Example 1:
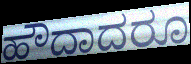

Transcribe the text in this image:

ಹೌದಾದರೂ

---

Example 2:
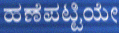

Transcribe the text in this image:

ಹಣೆಪಟ್ಟಿಯೇ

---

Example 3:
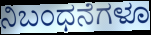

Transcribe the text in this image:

ನಿಬಂಧನೆಗಳೂ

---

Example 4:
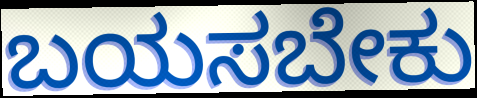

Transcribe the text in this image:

ಬಯಸಬೇಕು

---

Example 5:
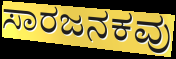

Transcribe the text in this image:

ಸಾರಜನಕವು